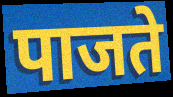
पाजते